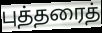
புத்தரைத்